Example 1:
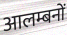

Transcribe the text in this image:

आलम्बनों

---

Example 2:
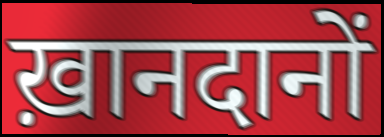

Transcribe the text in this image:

ख़ानदानों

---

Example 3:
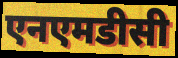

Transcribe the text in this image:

एनएमडीसी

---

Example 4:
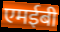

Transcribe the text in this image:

एमईबी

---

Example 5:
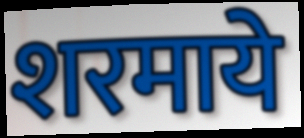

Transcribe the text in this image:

शरमाये